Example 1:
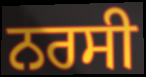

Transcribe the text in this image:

ਨਰਸੀ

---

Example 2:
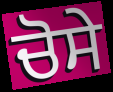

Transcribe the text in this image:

ਚੋਸੇ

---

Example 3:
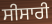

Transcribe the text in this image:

ਸੀਸਾਰੀ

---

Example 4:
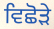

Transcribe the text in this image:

ਵਿਛੋੜੇ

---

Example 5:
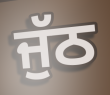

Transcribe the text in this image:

ਜੁੱਠ